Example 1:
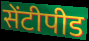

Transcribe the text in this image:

सेंटीपीड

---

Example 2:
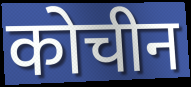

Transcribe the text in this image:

कोचीन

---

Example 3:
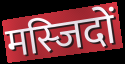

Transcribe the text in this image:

मस्‍जिदों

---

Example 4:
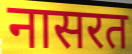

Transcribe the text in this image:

नासरत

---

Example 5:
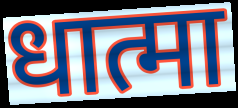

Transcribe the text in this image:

धात्मा